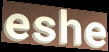
eshe